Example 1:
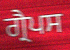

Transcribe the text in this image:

ਗ੍ਰੈਪਸ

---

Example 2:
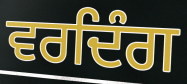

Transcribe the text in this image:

ਵਰਦਿੰਗ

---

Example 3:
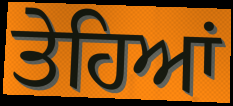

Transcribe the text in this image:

ਤੇਹਿਆਂ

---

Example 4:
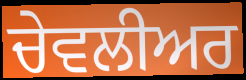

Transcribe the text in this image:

ਚੇਵਲੀਅਰ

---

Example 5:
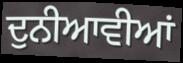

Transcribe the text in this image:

ਦੁਨੀਆਵੀਆਂ